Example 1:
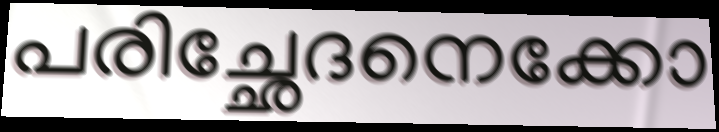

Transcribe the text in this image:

പരിച്ഛേദനെക്കോ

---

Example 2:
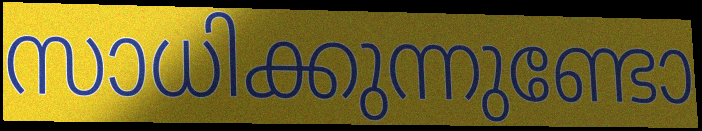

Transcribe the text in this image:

സാധിക്കുന്നുണ്ടോ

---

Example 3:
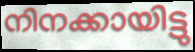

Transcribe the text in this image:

നിനക്കായിട്ടു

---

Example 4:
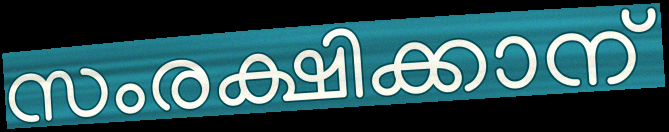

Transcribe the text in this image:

സംരക്ഷിക്കാന്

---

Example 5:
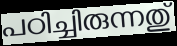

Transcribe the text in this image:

പഠിച്ചിരുന്നതു്